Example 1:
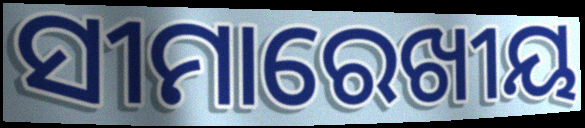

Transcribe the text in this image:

ସୀମାରେଖୀୟ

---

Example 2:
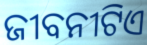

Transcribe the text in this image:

ଜୀବନୀଟିଏ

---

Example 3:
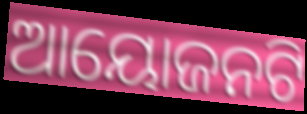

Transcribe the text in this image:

ଆୟୋଜନଟି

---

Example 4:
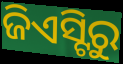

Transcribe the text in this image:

ଜିଏସ୍ଟିରୁ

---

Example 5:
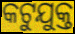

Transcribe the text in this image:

କଟୁଯୁକ୍ତ